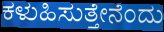
ಕಳುಹಿಸುತ್ತೇನೆಂದು